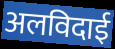
अलविदाई